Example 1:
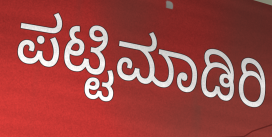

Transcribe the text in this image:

ಪಟ್ಟಿಮಾಡಿರಿ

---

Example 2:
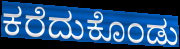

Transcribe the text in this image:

ಕರೆದುಕೊಂಡು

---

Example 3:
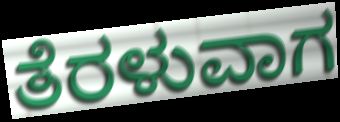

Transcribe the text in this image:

ತೆರಳುವಾಗ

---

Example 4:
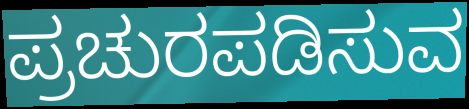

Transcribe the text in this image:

ಪ್ರಚುರಪಡಿಸುವ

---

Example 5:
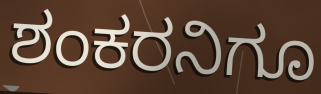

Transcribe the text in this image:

ಶಂಕರನಿಗೂ